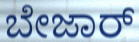
ಬೇಜಾರ್